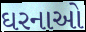
ઘરનાઓ